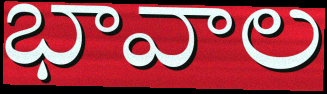
భావాల